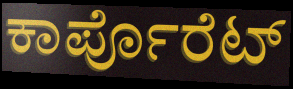
ಕಾರ್ಪೊರೆಟ್